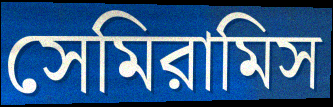
সেমিরামিস